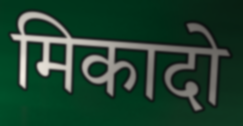
मिकादो